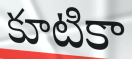
కూటికా